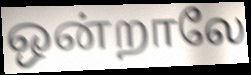
ஒன்றாலே